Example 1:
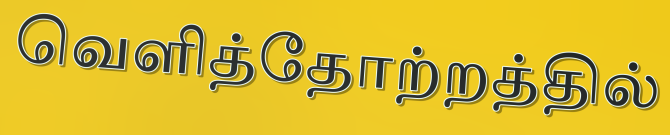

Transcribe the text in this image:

வெளித்தோற்றத்தில்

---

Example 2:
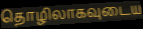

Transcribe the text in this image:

தொழிலாகவுடைய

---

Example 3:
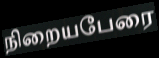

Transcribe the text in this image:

நிறையபேரை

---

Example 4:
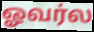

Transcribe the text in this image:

ஓவர்ல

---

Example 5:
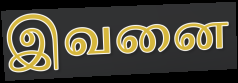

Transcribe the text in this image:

இவனை